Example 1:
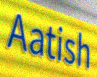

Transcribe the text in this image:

Aatish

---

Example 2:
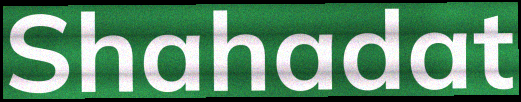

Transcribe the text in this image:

Shahadat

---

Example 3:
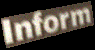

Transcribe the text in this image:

Inform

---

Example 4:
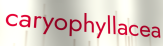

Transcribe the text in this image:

caryophyllacea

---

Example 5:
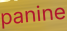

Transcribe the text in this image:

panine